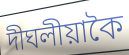
দীঘলীয়াকৈ